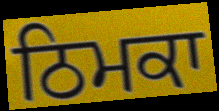
ਠਿਮਕਾ